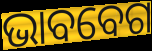
ଭାବବେଗ